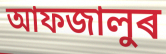
আফজালুৰ